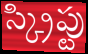
స్క్రిప్టు